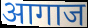
आगाज